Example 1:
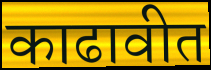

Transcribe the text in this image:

काढावीत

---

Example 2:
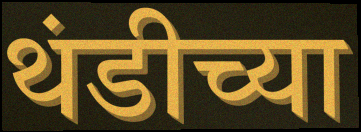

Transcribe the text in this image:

थंडीच्या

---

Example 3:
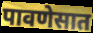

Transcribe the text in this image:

पावणेसात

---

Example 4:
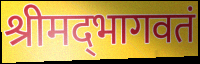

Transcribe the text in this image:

श्रीमद्‌भागवतं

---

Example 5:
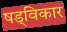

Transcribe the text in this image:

षड्‌विकार